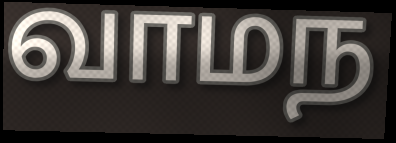
வாமந